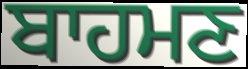
ਬਾਹਮਣ